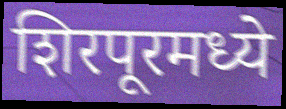
शिरपूरमध्ये